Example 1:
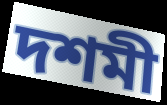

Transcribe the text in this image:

দশমী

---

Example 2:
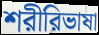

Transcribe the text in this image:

শরীরিভাষা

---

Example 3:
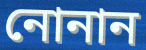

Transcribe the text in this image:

নোনান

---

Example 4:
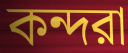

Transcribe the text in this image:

কন্দরা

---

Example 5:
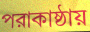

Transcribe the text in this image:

পরাকাষ্ঠায়